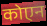
कोएन